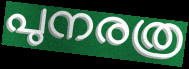
പുനരത്ര